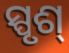
ସ୍ପୃଶ୍